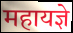
महायज्ञे